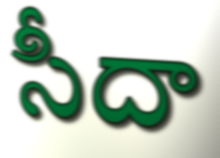
సీదా